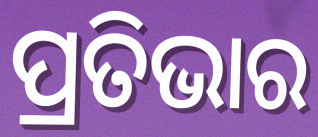
ପ୍ରତିଭାର